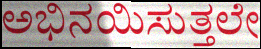
ಅಭಿನಯಿಸುತ್ತಲೇ